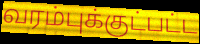
வரம்புக்குட்பட்ட